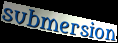
submersion